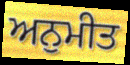
ਅਨੁਮੀਤ